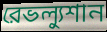
রেভল্যুশান